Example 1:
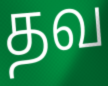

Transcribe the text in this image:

தவ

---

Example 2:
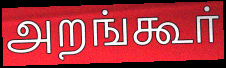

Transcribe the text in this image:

அறங்கூர்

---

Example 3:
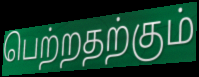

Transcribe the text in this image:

பெற்றதற்கும்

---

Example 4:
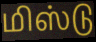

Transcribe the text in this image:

மிஸ்டு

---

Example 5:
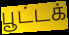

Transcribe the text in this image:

பூட்டக்